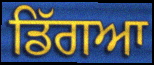
ਡਿੱਗਆ